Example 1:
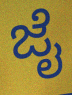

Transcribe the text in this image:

ಜೈ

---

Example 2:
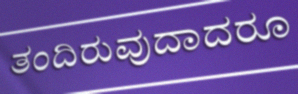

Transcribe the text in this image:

ತಂದಿರುವುದಾದರೂ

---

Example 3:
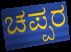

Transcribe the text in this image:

ಚಪ್ಪರ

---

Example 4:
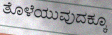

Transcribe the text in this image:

ತೊಳೆಯುವುದಕ್ಕೂ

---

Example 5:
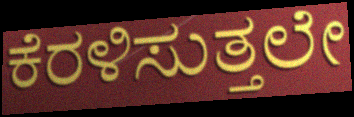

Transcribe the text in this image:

ಕೆರಳಿಸುತ್ತಲೇ